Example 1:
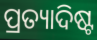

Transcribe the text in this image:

ପ୍ରତ୍ୟାଦିଷ୍ଟ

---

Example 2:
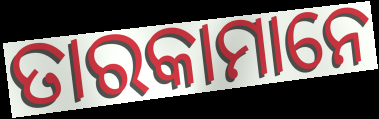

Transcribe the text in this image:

ତାରକାମାନେ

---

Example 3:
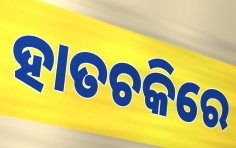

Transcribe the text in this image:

ହାତଚକିରେ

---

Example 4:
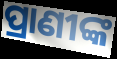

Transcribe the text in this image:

ପ୍ରାଣୀଙ୍କ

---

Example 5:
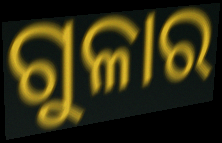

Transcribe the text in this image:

ଗୁଳାର